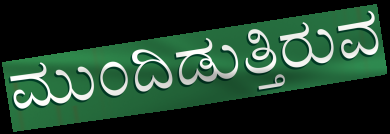
ಮುಂದಿಡುತ್ತಿರುವ